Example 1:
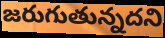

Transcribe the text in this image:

జరుగుతున్నదని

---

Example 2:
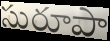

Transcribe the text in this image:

సురూపా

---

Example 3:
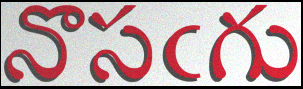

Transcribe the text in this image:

నొసఁగు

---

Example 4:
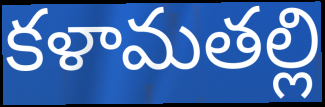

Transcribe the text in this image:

కళామతల్లి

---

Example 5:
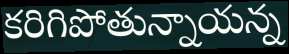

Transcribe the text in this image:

కరిగిపోతున్నాయన్న